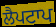
ਲੈਪਟਾਪ